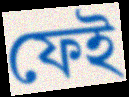
ফেই